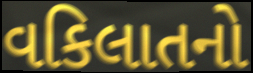
વકિલાતનો